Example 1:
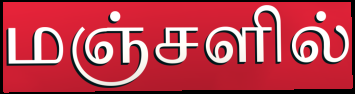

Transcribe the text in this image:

மஞ்சளில்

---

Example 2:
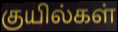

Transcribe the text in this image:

குயில்கள்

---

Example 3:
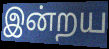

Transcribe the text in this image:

இன்றய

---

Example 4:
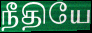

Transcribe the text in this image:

நீதியே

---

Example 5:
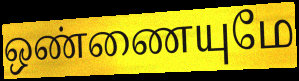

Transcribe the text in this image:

ஒண்ணையுமே